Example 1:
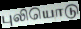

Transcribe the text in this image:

புலியொடு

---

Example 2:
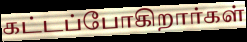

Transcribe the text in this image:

கட்டப்போகிறார்கள்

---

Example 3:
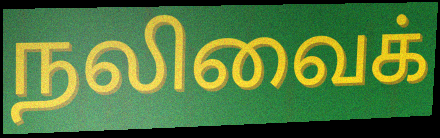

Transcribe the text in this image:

நலிவைக்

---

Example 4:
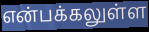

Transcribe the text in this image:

என்பக்கலுள்ள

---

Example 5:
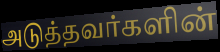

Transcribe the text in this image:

அடுத்தவர்களின்